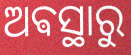
ଅଵସ୍ଥାରୁ